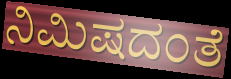
ನಿಮಿಷದಂತೆ